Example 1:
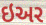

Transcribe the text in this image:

ઇઅર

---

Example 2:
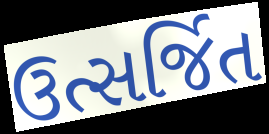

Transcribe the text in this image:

ઉત્સર્જિત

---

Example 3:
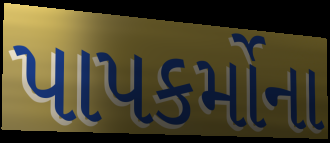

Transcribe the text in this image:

પાપકર્મોના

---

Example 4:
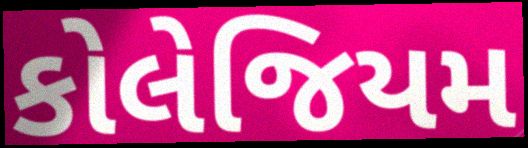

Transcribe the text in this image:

કોલેજિયમ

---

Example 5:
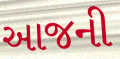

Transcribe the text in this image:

આજની